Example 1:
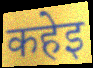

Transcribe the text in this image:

कहेइ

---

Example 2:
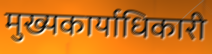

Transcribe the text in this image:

मुख्यकार्याधिकारी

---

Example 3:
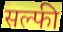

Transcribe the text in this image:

सल्फी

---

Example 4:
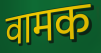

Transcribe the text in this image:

वामक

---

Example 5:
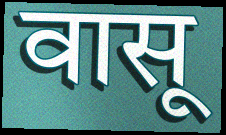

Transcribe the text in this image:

वासू